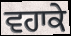
ਵਹਾਕੇ